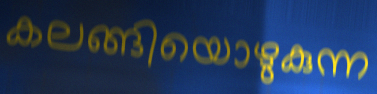
കലങ്ങിയൊഴുകുന്ന